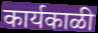
कार्यकाळी